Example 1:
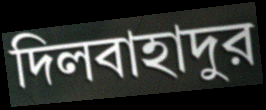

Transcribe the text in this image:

দিলবাহাদুর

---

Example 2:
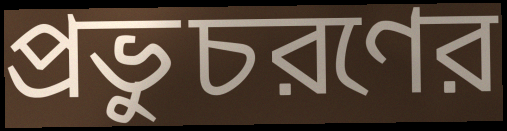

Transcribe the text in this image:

প্রভুচরণের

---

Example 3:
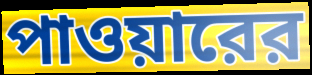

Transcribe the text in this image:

পাওয়ারের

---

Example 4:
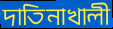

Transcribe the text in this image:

দাতিনাখালী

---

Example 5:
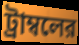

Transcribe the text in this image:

ট্রাম্বলের